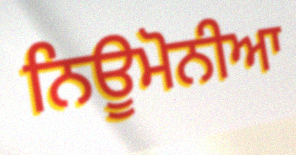
ਨਿਊਮੋਨੀਆ